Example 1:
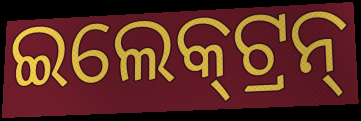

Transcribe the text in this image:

ଇଲେକ୍‍ଟ୍ରନ୍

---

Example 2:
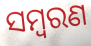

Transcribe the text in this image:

ସମ୍ଵରଣ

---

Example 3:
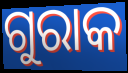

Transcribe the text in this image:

ଗୁରାକ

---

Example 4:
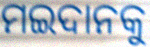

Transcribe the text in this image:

ମଇଦାନକୁ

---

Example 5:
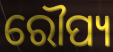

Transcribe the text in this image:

ରୌପ୍ୟ